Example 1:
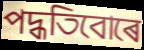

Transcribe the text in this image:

পদ্ধতিবোৰে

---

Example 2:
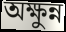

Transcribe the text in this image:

অক্ষুন্ন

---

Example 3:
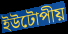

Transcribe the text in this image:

ইউটোপীয়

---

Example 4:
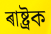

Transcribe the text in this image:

ৰাষ্ট্ৰক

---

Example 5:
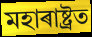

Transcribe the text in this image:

মহাৰাষ্ট্ৰত